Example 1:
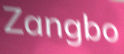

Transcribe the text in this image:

Zangbo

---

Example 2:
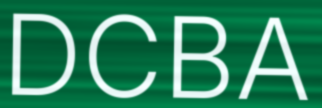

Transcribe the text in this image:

DCBA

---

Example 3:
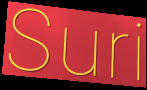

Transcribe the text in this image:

Suri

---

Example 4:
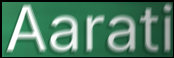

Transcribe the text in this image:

Aarati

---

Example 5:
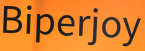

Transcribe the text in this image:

Biperjoy